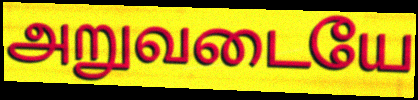
அறுவடையே